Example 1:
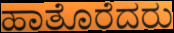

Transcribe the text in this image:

ಹಾತೊರೆದರು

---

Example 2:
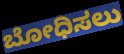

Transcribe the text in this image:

ಬೋಧಿಸಲು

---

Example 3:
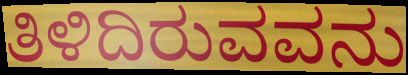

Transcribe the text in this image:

ತಿಳಿದಿರುವವನು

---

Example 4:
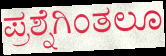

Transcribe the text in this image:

ಪ್ರಶ್ನೆಗಿಂತಲೂ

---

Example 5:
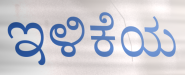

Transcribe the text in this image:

ಇಳಿಕೆಯ